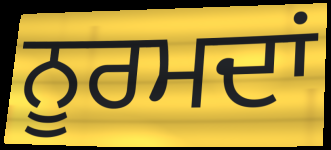
ਨੂਰਮਦਾਂ